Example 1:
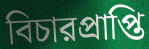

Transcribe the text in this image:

বিচারপ্রাপ্তি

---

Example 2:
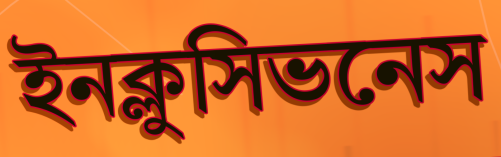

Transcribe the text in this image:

ইনক্লুসিভনেস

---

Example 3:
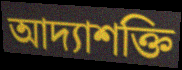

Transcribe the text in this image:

আদ্যাশক্তি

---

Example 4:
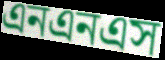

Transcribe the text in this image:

এনএনএস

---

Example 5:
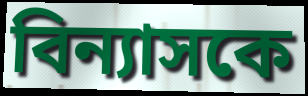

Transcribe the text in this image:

বিন্যাসকে